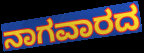
ನಾಗವಾರದ